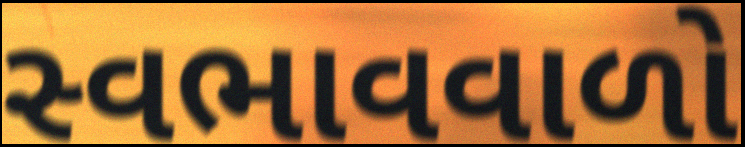
સ્વભાવવાળો